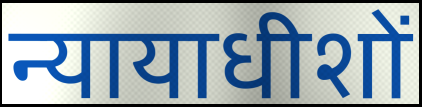
न्यायाधीशों